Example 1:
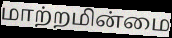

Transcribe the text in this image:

மாற்றமின்மை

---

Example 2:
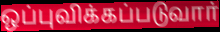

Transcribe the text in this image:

ஒப்புவிக்கப்படுவார்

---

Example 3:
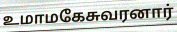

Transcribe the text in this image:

உமாமகேசுவரனார்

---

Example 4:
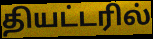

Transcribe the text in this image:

தியட்டரில்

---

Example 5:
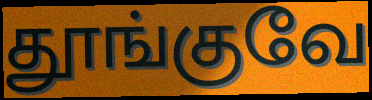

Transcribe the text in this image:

தூங்குவே